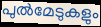
പുൽമേടുകളും